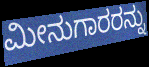
ಮೀನುಗಾರರನ್ನು